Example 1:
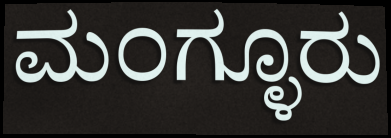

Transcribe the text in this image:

ಮಂಗ್ಳೂರು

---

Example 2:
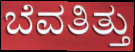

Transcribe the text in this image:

ಬೆವತಿತ್ತು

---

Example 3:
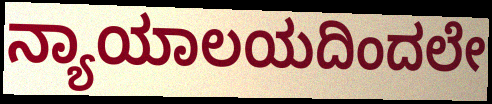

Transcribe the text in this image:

ನ್ಯಾಯಾಲಯದಿಂದಲೇ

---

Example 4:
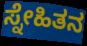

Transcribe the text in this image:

ಸ್ನೇಹಿತನ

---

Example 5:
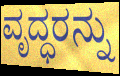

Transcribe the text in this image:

ವೃದ್ಧರನ್ನು